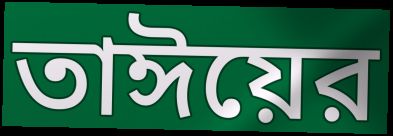
তাঈয়ের